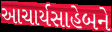
આચાર્યસાહેબને